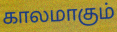
காலமாகும்